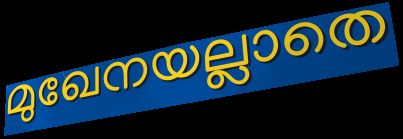
മുഖേനയല്ലാതെ